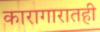
कारागारातही